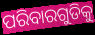
ପରିବାରଗୁଡିକୁ